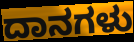
ದಾನಗಳು